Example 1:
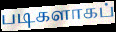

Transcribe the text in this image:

படிகளாகப்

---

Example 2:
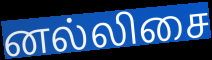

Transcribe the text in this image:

னல்லிசை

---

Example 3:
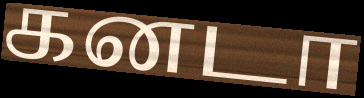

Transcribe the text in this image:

கனடா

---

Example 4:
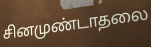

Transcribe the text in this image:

சினமுண்டாதலை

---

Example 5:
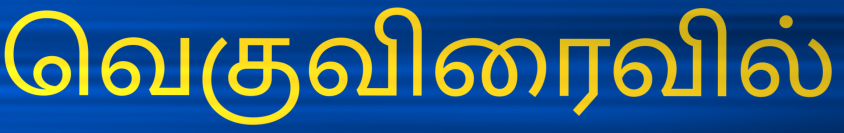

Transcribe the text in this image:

வெகுவிரைவில்